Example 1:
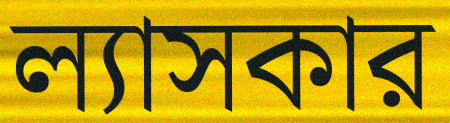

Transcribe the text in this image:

ল্যাসকার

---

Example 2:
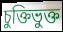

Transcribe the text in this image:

চুক্তিভুক্ত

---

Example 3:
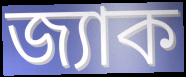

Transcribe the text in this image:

জ্যাক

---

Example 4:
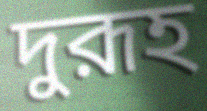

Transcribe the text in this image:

দুরূহ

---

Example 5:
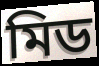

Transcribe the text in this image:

মিড